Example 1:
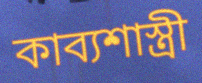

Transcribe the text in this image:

কাব্যশাস্ত্রী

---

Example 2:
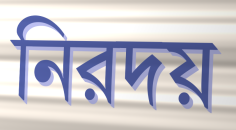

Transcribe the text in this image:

নিরদয়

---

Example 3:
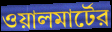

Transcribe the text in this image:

ওয়ালমার্টের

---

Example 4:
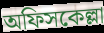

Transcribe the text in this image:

অফিসকেল্লা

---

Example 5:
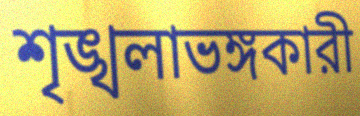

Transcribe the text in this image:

শৃঙ্খলাভঙ্গকারী